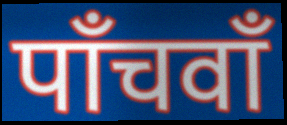
पाँचवाँ